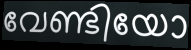
വേണ്ടിയോ